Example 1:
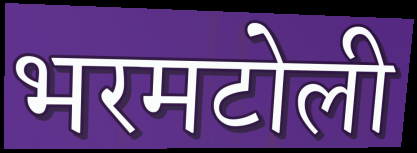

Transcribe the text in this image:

भरमटोली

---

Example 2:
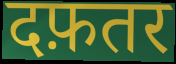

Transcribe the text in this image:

दफ़तर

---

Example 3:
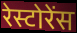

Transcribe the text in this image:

रेस्टोरेंस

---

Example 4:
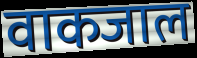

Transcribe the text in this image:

वाकजाल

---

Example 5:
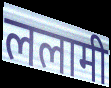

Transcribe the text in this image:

ललामी